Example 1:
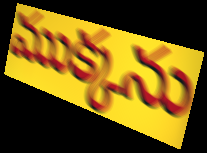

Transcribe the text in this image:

ముక్కను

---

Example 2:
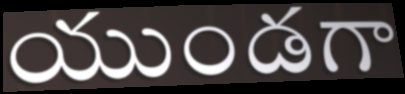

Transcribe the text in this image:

యుండగా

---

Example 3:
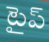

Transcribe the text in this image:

టైప్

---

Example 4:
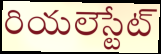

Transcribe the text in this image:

రియలెస్టేట్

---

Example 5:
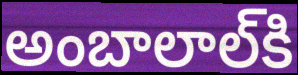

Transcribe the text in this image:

అంబాలాల్‌కి